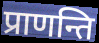
प्राणन्ति